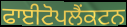
ਫਾਈਟੋਪਲੈਂਕਟਨ